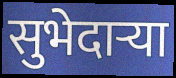
सुभेदाऱ्या